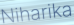
Niharika